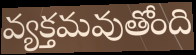
వ్యక్తమవుతోంది